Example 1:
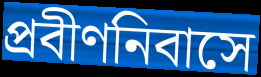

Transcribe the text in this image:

প্রবীণনিবাসে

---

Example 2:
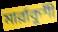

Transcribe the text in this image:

মার্রাকুশী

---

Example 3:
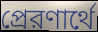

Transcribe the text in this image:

প্রেরণার্থে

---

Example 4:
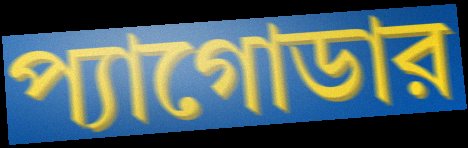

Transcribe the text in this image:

প্যাগোডার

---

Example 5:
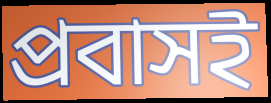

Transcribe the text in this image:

প্রবাসই